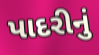
પાદરીનું